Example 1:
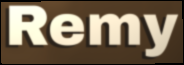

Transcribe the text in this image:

Remy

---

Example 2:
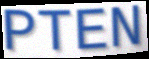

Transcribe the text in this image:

PTEN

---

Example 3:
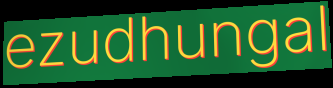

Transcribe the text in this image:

ezudhungal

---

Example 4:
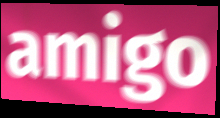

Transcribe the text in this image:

amigo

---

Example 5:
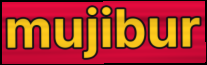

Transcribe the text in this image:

mujibur